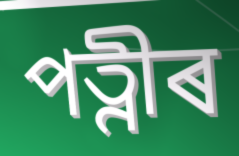
পত্নীৰ